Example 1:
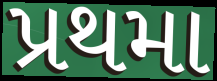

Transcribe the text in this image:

પ્રથમા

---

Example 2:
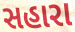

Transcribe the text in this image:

સહારા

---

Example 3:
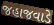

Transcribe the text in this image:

જહાજવાડે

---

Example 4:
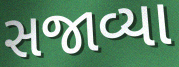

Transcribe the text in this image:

સજાવ્યા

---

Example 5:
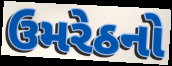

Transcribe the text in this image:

ઉમરેઠનો